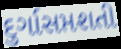
દુર્ગાસપ્તશતી